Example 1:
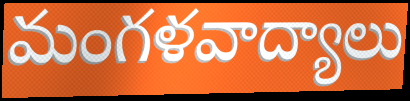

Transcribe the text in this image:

మంగళవాద్యాలు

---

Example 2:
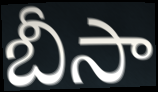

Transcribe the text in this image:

బీసా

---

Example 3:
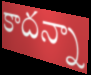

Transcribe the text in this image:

కాదన్నా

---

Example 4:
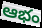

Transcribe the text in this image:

ఆభం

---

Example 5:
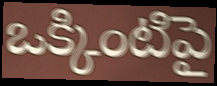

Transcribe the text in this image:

ఒక్కింటిపై